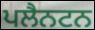
ਪਲੈਨਟਨ